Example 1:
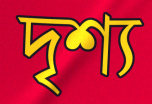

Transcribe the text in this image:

দৃশ্য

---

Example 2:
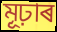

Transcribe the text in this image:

মূঢ়াৰ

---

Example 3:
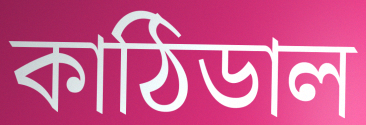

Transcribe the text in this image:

কাঠিডাল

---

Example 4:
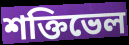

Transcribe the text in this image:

শক্তিভেল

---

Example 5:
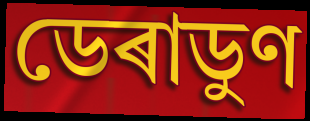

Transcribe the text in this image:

ডেৰাডুণ